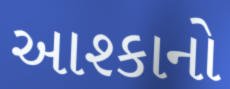
આશ્કાનો